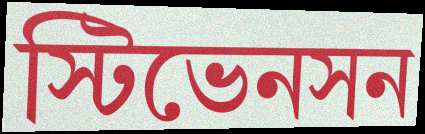
স্টিভেনসন